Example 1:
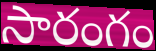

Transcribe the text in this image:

సారంగం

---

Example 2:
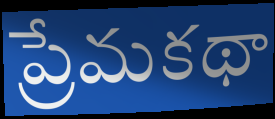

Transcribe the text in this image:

ప్రేమకథా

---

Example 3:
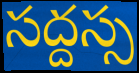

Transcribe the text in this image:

సద్దస్స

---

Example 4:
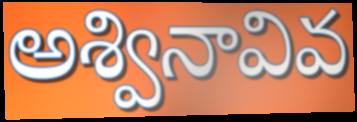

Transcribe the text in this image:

అశ్వినావివ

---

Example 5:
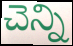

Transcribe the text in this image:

చెన్ని